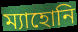
ম্যাহোনি